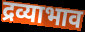
द्रव्याभाव